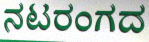
ನಟರಂಗದ